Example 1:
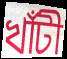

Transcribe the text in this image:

খাঁটী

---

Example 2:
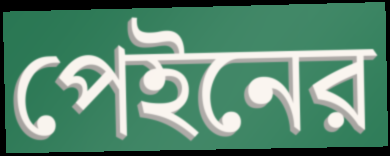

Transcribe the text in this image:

পেইনের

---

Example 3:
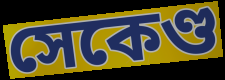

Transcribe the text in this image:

সেকেণ্ড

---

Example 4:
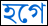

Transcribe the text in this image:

হগে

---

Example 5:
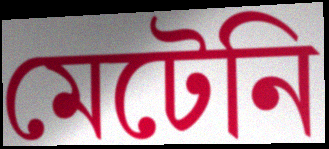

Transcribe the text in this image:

মেটেনি